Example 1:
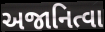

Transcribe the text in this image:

અજાનિત્વા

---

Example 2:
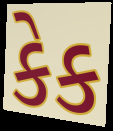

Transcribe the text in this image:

કેક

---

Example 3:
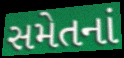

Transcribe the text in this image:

સમેતનાં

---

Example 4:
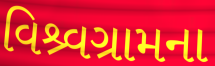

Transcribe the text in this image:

વિશ્ર્વગ્રામના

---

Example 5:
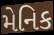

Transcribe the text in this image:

મેનિક